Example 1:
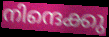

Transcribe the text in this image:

നിന്ദെക്കു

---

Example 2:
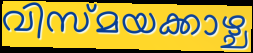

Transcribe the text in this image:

വിസ്മയക്കാഴ്ച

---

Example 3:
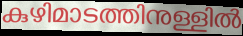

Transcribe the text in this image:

കുഴിമാടത്തിനുള്ളിൽ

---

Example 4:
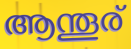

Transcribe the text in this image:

ആന്തൂര്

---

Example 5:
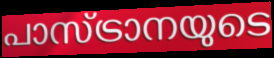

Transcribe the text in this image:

പാസ്ട്രാനയുടെ